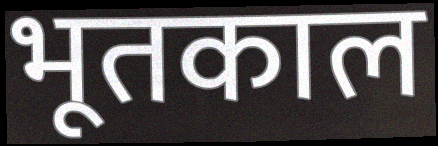
भूतकाल